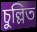
চুল্লিত